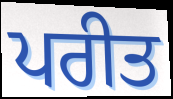
ਪਰੀਤ